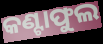
କଣ୍ଟାଫୁଲ